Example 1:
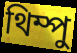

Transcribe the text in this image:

থিম্পু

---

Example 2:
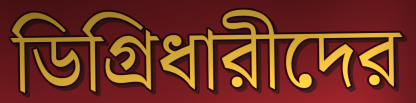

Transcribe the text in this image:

ডিগ্রিধারীদের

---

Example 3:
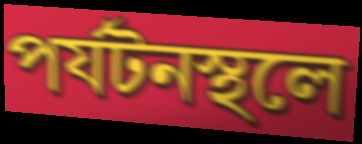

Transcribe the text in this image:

পর্যটনস্থলে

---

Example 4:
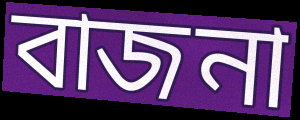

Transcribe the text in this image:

বাজনা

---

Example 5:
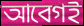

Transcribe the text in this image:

আবেগই